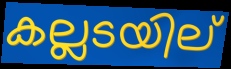
കല്ലടയില്